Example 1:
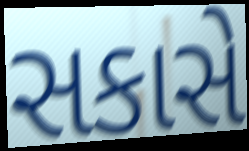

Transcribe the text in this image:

સકાસે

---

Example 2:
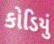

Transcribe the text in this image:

કોડિયું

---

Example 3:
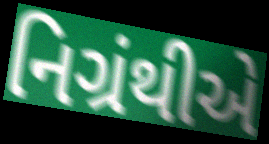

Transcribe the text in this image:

નિગ્રંથીએ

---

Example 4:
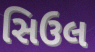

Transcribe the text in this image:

સિઉલ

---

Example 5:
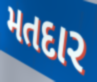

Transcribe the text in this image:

મતદાર